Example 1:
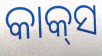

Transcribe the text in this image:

କାକ୍‌ସ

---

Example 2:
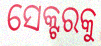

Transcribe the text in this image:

ସେକ୍ଟରକୁ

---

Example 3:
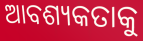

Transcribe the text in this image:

ଆବଶ୍ୟକତାକୁ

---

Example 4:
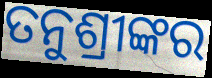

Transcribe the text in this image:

ତନୁଶ୍ରୀଙ୍କର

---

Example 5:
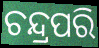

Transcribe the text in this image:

ଚନ୍ଦ୍ରପରି